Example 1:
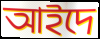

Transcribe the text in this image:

আইদে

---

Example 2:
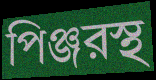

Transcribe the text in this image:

পিঞ্জরস্থ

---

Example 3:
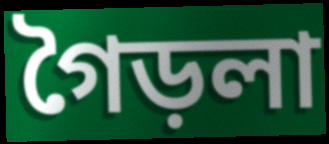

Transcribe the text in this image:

গৈড়লা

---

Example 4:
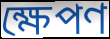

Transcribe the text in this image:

ক্ষেপণ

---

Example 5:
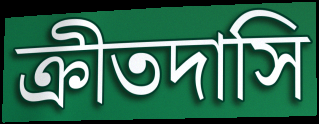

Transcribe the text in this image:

ক্রীতদাসি